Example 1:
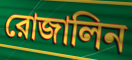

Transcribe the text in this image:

রোজালিন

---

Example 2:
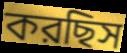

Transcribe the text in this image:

করছিস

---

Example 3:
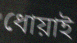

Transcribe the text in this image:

ধোয়াই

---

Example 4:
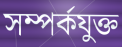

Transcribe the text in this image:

সম্পর্কযুক্ত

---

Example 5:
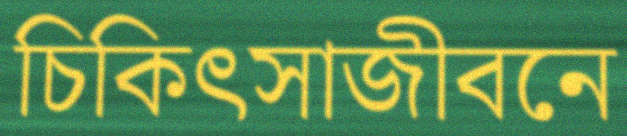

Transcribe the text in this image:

চিকিৎসাজীবনে